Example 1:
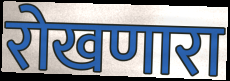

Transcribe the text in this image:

रोखणारा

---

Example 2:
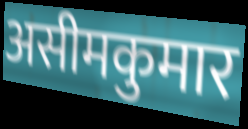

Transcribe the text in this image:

असीमकुमार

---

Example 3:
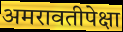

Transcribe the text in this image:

अमरावतीपेक्षा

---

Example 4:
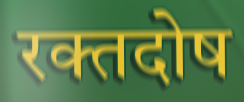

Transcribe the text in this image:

रक्‍तदोष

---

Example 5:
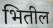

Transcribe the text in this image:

भितील